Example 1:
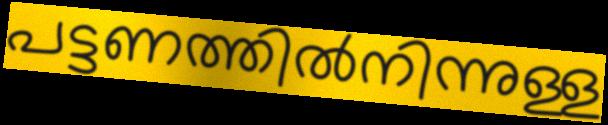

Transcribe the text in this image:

പട്ടണത്തിൽനിന്നുള്ള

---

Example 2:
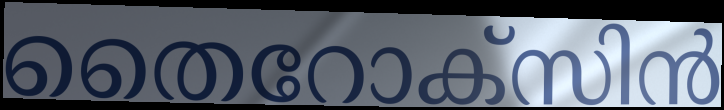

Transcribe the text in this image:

തൈറോക്സിൻ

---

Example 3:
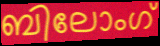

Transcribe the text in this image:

ബിലോംഗ്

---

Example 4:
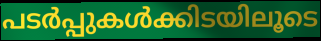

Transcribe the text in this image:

പടർപ്പുകൾക്കിടയിലൂടെ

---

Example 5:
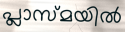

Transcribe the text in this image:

പ്ലാസ്മയിൽ